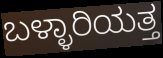
ಬಳ್ಳಾರಿಯತ್ತ